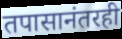
तपासानंतरही